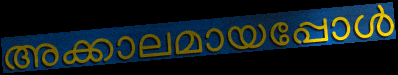
അക്കാലമായപ്പോൾ